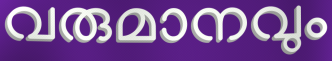
വരുമാനവും